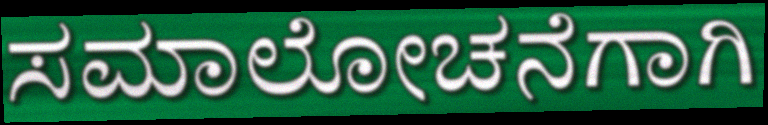
ಸಮಾಲೋಚನೆಗಾಗಿ